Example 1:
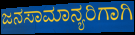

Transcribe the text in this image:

ಜನಸಾಮಾನ್ಯರಿಗಾಗಿ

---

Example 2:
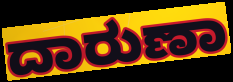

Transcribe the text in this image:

ದಾರುಣಾ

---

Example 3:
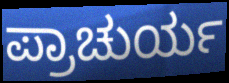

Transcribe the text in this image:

ಪ್ರಾಚುರ್ಯ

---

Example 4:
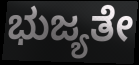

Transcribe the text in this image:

ಭುಜ್ಯತೇ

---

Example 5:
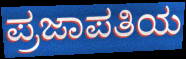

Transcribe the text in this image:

ಪ್ರಜಾಪತಿಯ